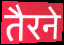
तैरने